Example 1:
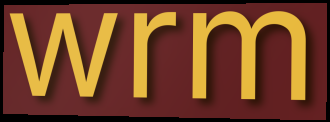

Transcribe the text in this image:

wrm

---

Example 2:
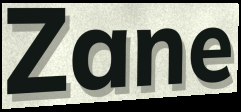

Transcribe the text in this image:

Zane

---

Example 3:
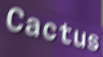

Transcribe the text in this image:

Cactus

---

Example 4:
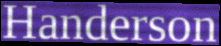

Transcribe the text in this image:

Handerson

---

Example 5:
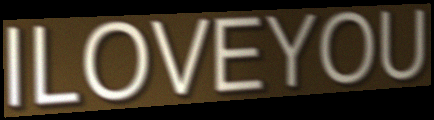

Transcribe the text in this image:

ILOVEYOU